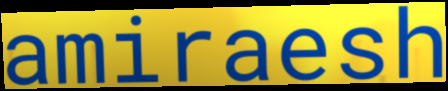
amiraesh